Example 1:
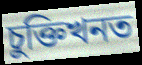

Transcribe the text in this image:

চুক্তিখনত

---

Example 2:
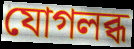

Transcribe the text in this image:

যোগলব্ধ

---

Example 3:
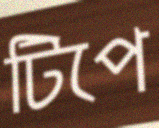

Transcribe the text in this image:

টিপে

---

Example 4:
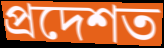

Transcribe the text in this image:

প্ৰদেশত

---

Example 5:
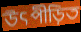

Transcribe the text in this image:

উৎপীড়িত